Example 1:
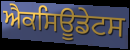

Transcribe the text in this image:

ਐਕਸਿਊਡੇਟਸ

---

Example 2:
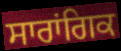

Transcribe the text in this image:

ਸਾਰਾਂਗਿਕ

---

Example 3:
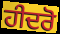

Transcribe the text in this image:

ਹੀਦਰੋ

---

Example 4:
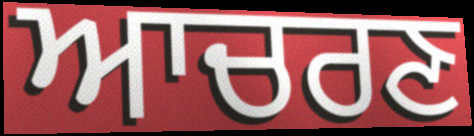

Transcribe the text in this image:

ਆਚਰਣ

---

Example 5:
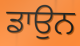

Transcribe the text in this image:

ਡਾਉਨ